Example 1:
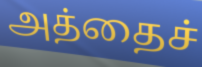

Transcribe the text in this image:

அத்தைச்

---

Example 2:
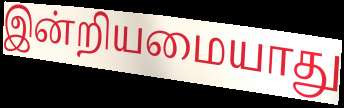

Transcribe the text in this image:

இன்றியமையாது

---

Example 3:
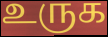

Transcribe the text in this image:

உருக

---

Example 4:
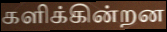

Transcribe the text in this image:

களிக்கின்றன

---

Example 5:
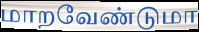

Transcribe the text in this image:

மாறவேண்டுமா